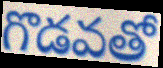
గొడవతో